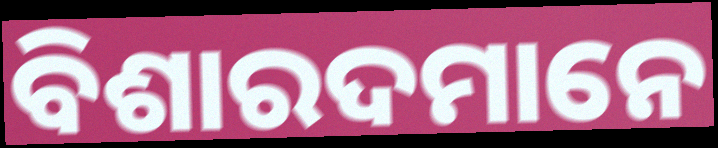
ବିଶାରଦମାନେ